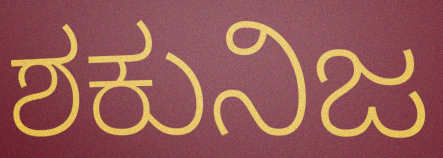
ಶಕುನಿಜ